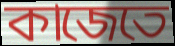
কাজেতে